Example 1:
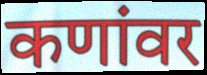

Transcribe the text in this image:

कणांवर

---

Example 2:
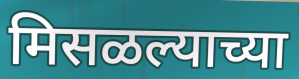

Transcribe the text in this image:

मिसळल्याच्या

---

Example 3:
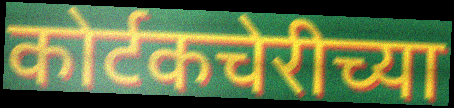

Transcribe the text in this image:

कोर्टकचेरीच्या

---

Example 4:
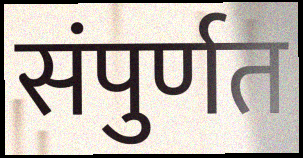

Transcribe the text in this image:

संपुर्णत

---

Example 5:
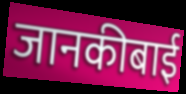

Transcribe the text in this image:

जानकीबाई